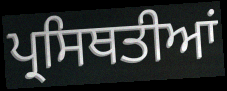
ਪ੍ਰਸਿਥਤੀਆਂ